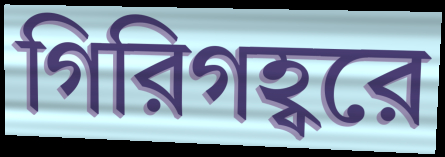
গিরিগহ্বরে